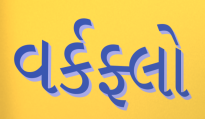
વર્કફ્લો